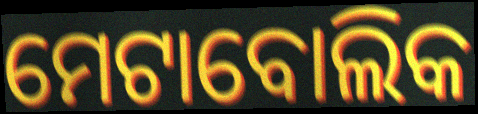
ମେଟାବୋଲିକ